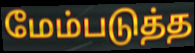
மேம்படுத்த